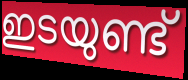
ഇടയുണ്ട്